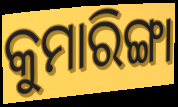
କୁମାରିଙ୍ଗା